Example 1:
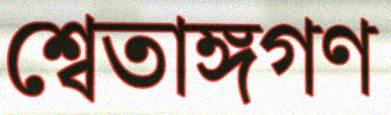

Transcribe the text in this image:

শ্বেতাঙ্গগণ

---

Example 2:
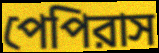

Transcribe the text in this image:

পেপিরাস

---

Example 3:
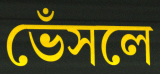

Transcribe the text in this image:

ভেঁসলে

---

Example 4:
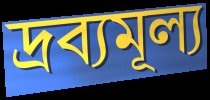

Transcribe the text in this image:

দ্রব্যমূল্য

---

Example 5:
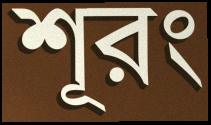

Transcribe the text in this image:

শূরং